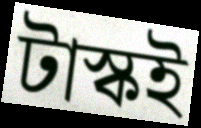
টাস্কই